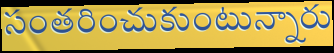
సంతరించుకుంటున్నారు